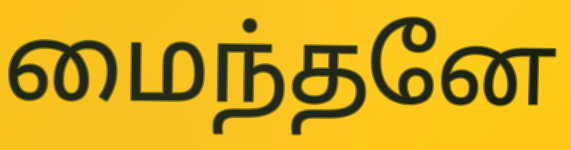
மைந்தனே